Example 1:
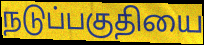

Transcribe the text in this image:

நடுப்பகுதியை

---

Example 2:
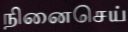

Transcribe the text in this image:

நினைசெய்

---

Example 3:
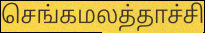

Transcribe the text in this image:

செங்கமலத்தாச்சி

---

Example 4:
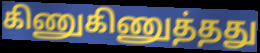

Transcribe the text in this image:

கிணுகிணுத்தது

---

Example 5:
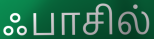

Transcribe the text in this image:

ஃபாசில்